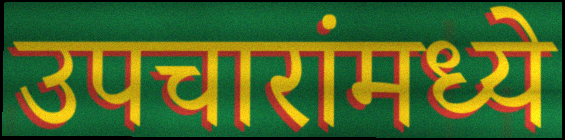
उपचारांमध्ये